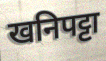
खनिपट्टा